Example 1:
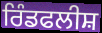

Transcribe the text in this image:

ਰਿੰਡਫਲੀਸ਼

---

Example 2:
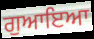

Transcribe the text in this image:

ਗੁਆਇਆ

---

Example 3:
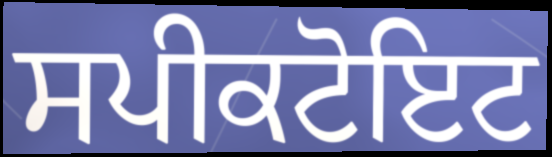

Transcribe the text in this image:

ਸਪੀਕਟੋਇਟ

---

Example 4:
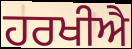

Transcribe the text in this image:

ਹਰਖੀਐ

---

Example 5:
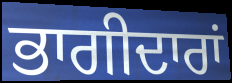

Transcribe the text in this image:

ਭਾਗੀਦਾਰਾਂ